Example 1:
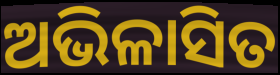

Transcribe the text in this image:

ଅଭିଳାସିତ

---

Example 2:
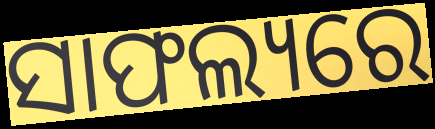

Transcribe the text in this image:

ସାଫଲ୍ୟରେ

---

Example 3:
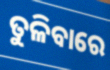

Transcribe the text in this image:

ତୁଳିବାରେ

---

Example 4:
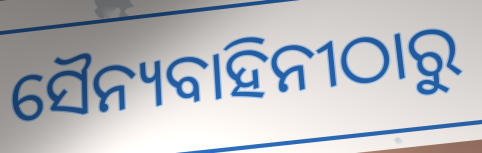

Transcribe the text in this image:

ସୈନ୍ୟବାହିନୀଠାରୁ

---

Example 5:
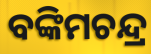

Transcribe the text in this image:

ବଙ୍କିମଚନ୍ଦ୍ର